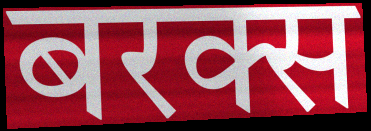
बरक्स